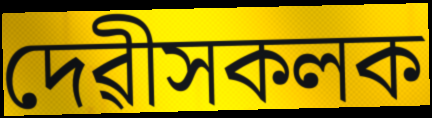
দেৱীসকলক